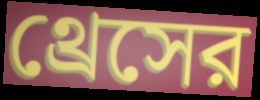
থ্রেসের